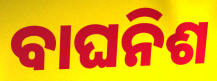
ବାଘନିଶ